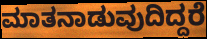
ಮಾತನಾಡುವುದಿದ್ದರೆ